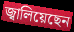
জ্বালিয়েছেন